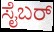
ಸೈಬರ್